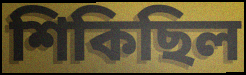
শিকিছিল